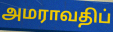
அமராவதிப்